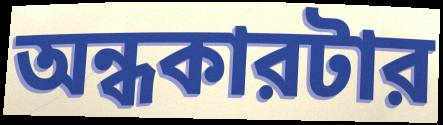
অন্ধকারটার